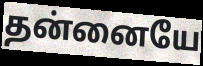
தன்னையே